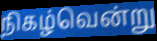
நிகழ்வென்று